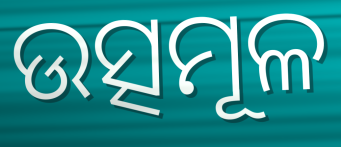
ଉତ୍ସମୂଳ